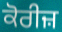
ਕੋਰੀਜ਼